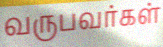
வருபவர்கள்